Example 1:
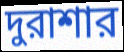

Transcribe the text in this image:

দুরাশার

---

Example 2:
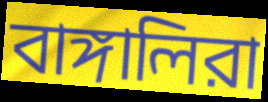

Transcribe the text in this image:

বাঙ্গালিরা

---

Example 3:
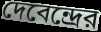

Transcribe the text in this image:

দেবেন্দ্রের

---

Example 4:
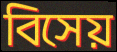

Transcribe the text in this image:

বিসেয়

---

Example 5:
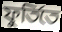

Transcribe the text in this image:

ফুর্তিতে